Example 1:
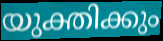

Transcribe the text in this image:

യുക്തിക്കും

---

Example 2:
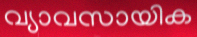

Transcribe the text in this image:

വ്യാവസായിക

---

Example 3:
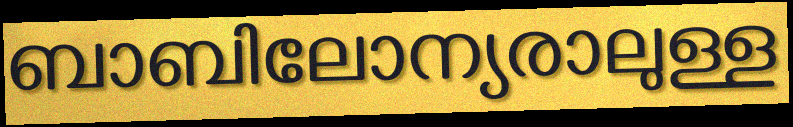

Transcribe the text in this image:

ബാബിലോന്യരാലുള്ള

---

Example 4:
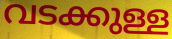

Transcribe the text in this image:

വടക്കുള്ള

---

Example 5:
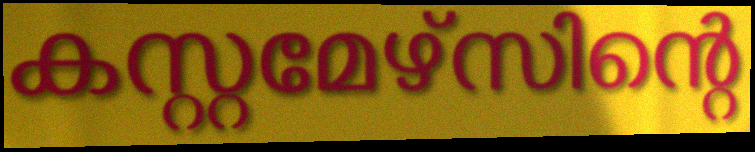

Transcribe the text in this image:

കസ്റ്റമേഴ്സിന്റെ